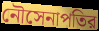
নৌসেনাপতির